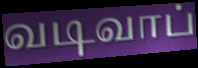
வடிவாப்